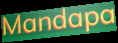
Mandapa